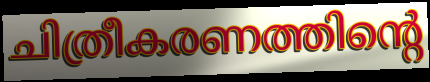
ചിത്രീകരണത്തിന്റെ